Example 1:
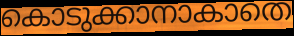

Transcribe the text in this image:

കൊടുക്കാനാകാതെ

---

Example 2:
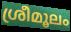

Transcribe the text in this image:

ശ്രീമൂലം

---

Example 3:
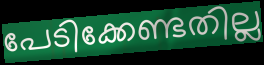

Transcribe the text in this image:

പേടിക്കേണ്ടതില്ല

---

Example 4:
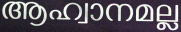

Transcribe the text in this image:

ആഹ്വാനമല്ല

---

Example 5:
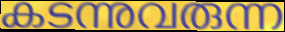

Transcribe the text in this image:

കടന്നുവരുന്ന